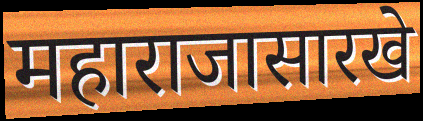
महाराजासारखे